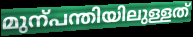
മുന്പന്തിയിലുള്ളത്